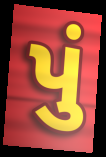
પું